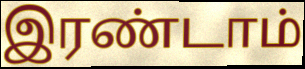
இரண்டாம்